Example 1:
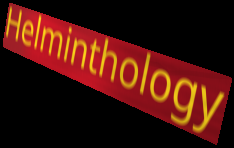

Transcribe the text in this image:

Helminthology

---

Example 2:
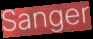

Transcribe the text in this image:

Sanger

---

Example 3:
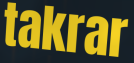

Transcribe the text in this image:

takrar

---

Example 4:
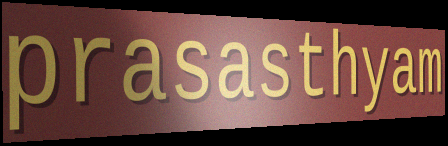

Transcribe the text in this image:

prasasthyam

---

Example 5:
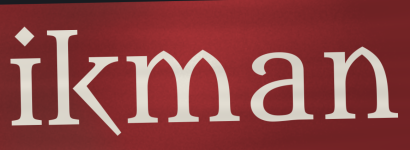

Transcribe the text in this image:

ikman